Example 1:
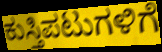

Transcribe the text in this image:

ಕುಸ್ತಿಪಟುಗಳಿಗೆ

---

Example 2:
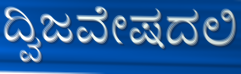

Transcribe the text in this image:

ದ್ವಿಜವೇಷದಲಿ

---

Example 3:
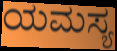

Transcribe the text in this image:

ಯಮಸ್ಯ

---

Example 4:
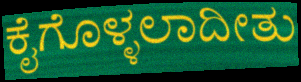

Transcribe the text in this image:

ಕೈಗೊಳ್ಳಲಾದೀತು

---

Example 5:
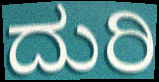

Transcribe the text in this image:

ದುರಿ